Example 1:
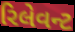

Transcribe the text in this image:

રિલેવન્ટ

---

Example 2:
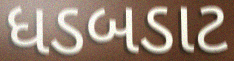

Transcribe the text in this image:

ધડબડાટ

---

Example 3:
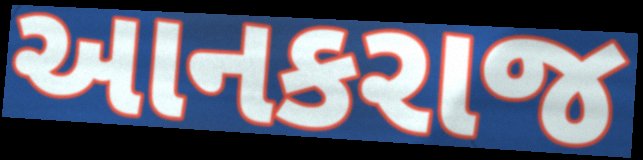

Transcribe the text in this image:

આનકરાજ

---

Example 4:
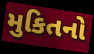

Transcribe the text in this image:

મુકિતનો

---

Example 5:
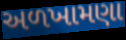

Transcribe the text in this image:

અળખામણા